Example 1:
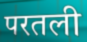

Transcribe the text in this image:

परतली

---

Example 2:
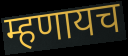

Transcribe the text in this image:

म्हणायच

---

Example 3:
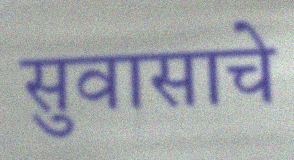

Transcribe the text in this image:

सुवासाचे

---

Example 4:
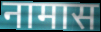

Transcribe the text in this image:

नामास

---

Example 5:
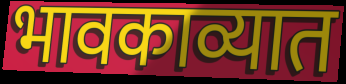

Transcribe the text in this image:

भावकाव्यात